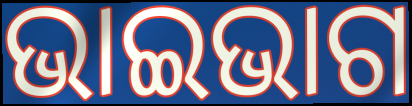
ଭାଇଭାଗ